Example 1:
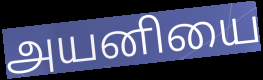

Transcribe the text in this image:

அயனியை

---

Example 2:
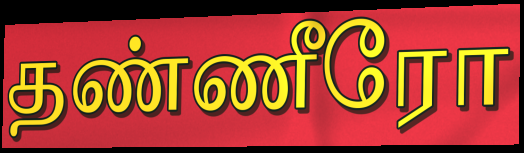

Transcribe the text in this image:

தண்ணீரோ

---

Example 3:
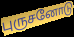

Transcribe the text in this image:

புருசனோடு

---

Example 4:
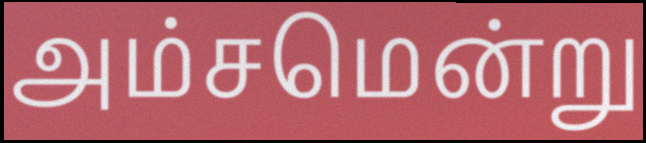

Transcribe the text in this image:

அம்சமென்று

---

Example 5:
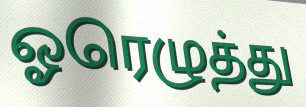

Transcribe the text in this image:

ஓரெழுத்து